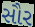
સૌર